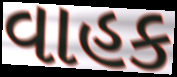
વાહક